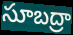
సూబద్రా